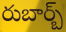
రుబార్బ్